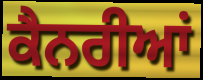
ਕੈਨਰੀਆਂ